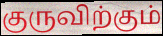
குருவிற்கும்